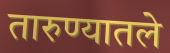
तारुण्यातले